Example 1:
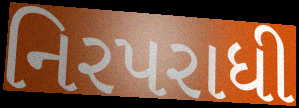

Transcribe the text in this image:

નિરપરાધી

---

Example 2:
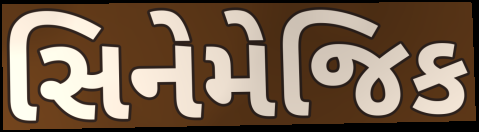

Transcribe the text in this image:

સિનેમેજિક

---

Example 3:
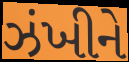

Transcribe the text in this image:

ઝંખીને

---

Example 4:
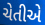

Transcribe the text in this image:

ચેતીએ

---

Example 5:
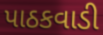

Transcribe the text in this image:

પાઠકવાડી